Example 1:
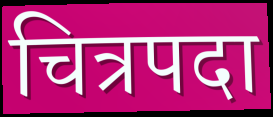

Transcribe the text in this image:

चित्रपदा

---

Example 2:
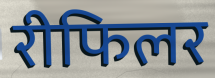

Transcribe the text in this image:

रीफिलर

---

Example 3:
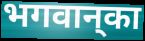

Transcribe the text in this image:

भगवान्‌का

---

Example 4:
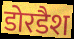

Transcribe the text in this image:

डोरडैश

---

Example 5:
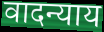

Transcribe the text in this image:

वादन्याय